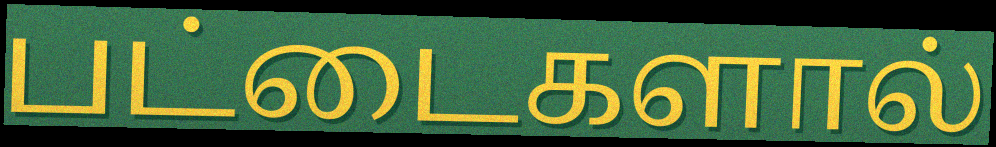
பட்டைகளால்